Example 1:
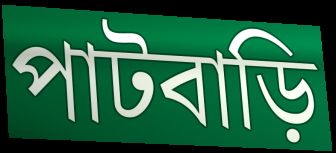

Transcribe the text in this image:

পাটবাড়ি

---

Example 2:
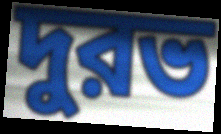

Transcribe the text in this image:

দুরভ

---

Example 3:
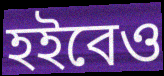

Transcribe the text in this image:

হইবেও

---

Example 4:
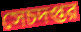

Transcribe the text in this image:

সেচদপ্তর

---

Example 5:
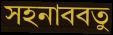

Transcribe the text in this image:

সহনাববতু